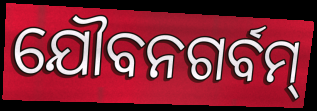
ଯୌବନଗର୍ବମ୍